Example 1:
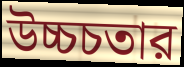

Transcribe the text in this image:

উচ্চচতার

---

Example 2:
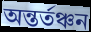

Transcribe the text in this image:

অন্তর্তঞ্চন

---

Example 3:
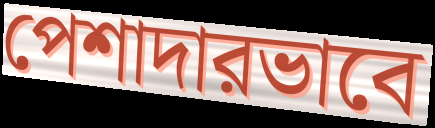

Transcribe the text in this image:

পেশাদারভাবে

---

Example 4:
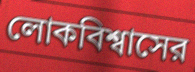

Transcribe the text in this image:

লোকবিশ্বাসের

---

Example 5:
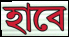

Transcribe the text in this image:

হাবে